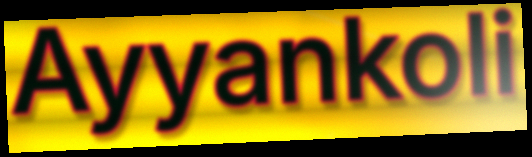
Ayyankoli